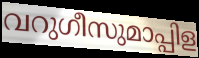
വറുഗീസുമാപ്പിള